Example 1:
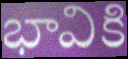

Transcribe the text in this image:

భావికి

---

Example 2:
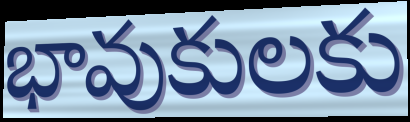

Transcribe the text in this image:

భావుకులకు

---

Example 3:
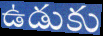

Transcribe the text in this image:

ఉడుకు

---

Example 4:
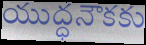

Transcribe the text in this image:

యుద్ధనౌకకు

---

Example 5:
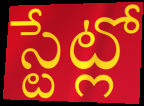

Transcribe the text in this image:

స్టేట్లో